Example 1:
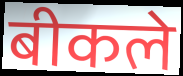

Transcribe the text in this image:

बीकले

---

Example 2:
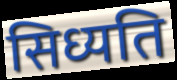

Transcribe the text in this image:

सिध्यति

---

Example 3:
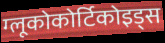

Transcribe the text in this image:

ग्लूकोकोर्टिकोइड्स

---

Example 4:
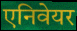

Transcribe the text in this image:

एनिवेयर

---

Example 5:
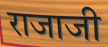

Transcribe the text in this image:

राजाजी